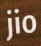
jio